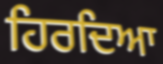
ਹਿਰਦਿਆ